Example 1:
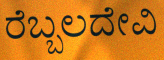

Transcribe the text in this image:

ರೆಬ್ಬಲದೇವಿ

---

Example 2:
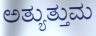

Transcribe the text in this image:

ಅತ್ಯುತ್ತುಮ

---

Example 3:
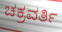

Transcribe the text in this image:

ಚಕ್ರವರ್ತಿ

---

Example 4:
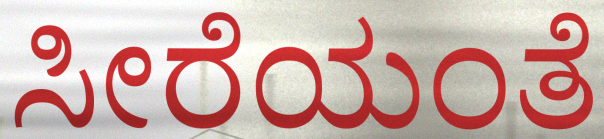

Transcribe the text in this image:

ಸೀರೆಯಂತೆ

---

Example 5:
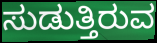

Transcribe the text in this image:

ಸುಡುತ್ತಿರುವ